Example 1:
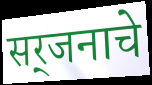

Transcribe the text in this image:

सर्जनाचे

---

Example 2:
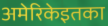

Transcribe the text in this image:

अमेरिकेइतका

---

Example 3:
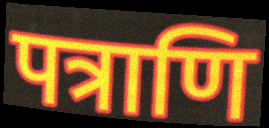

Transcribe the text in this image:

पत्राणि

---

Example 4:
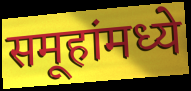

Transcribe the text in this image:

समूहांमध्ये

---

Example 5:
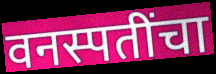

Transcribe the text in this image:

वनस्पतींचा